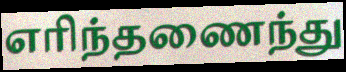
எரிந்தணைந்து